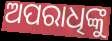
ଅପରାଧିଙ୍କୁ